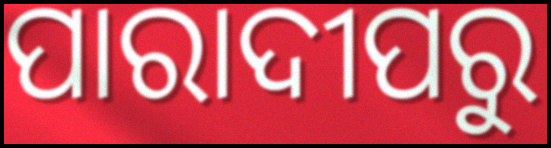
ପାରାଦୀପରୁ